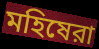
মহিষেরা